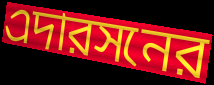
এদারসনের